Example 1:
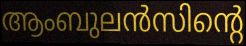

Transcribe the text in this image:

ആംബുലൻസിന്റെ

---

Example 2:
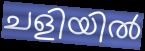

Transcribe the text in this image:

ചളിയിൽ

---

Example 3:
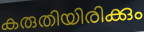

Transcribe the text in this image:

കരുതിയിരിക്കും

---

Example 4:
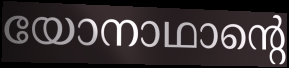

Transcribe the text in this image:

യോനാഥാന്റെ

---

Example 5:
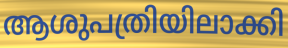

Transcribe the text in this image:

ആശുപത്രിയിലാക്കി